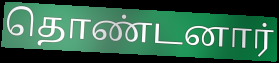
தொண்டனார்